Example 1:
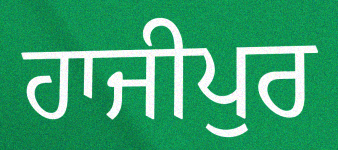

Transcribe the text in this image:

ਹਾਜੀਪੁਰ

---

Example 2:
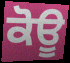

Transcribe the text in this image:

ਕੋਊ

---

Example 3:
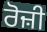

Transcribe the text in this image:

ਰੋਜ਼ੀ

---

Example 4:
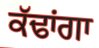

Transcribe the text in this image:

ਕੱਢਾਂਗਾ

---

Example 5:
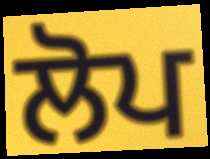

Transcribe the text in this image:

ਲੋਪ